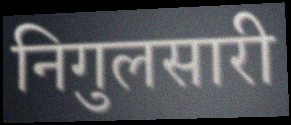
निगुलसारी